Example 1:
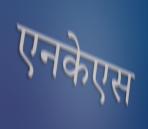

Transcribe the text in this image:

एनकेएस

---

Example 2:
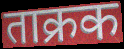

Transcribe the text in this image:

ताक्रक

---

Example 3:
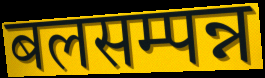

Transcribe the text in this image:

बलसम्पन्न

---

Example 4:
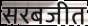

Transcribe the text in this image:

सरबजीत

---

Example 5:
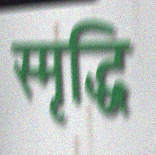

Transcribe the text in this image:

स्मृद्धि